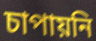
চাপায়নি